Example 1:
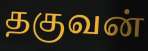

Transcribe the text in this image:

தகுவன்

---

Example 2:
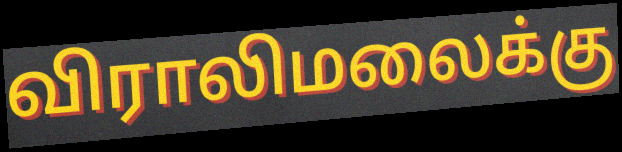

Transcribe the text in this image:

விராலிமலைக்கு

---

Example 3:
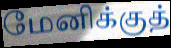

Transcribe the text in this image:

மேனிக்குத்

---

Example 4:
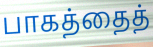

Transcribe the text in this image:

பாகத்தைத்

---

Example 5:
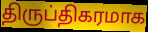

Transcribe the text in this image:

திருப்திகரமாக